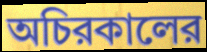
অচিরকালের